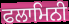
ਫਲਾਮਿਨੀ